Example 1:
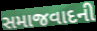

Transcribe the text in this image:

સમાજવાદની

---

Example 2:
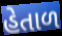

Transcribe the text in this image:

હેતાળ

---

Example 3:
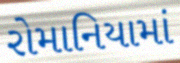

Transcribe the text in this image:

રોમાનિયામાં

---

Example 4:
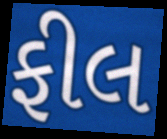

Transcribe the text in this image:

ફીલ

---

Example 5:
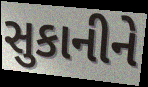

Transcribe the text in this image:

સુકાનીને